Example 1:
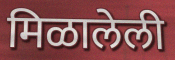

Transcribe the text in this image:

मिळालेली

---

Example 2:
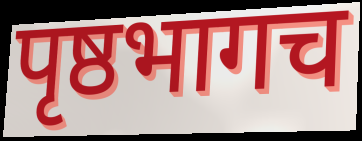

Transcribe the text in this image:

पृष्ठभागच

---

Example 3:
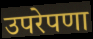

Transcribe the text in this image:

उपरेपणा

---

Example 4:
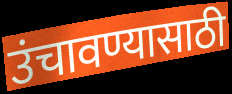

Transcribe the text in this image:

उंचावण्यासाठी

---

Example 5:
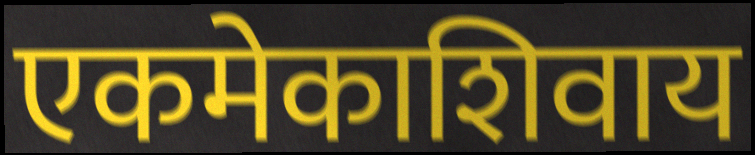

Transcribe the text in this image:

एकमेकाशिवाय